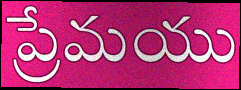
ప్రేమయు